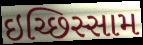
ઇચ્છિસ્સામ